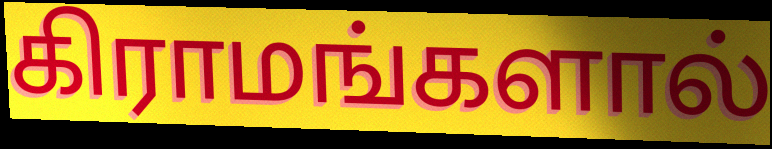
கிராமங்களால்